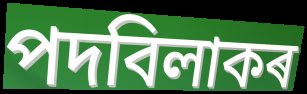
পদবিলাকৰ